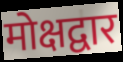
मोक्षद्वार